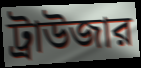
ট্রাউজার